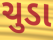
ચુડા